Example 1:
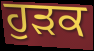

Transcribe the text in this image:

ਹੁੜਕ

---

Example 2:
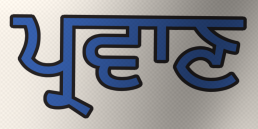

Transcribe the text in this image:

ਪ੍ਰਵਾਣ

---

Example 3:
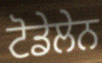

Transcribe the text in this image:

ਟੋਡੇਲੇਨ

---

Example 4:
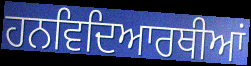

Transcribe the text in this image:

ਹਨਵਿਦਿਆਰਥੀਆਂ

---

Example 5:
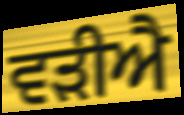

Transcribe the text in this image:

ਵੜੀਐ